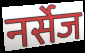
नर्सेज